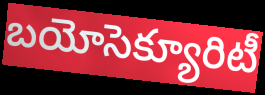
బయోసెక్యూరిటీ